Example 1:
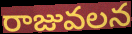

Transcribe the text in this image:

రాజువలన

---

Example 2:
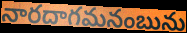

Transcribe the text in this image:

నారదాగమనంబును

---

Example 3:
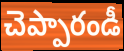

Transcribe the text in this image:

చెప్పారండీ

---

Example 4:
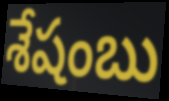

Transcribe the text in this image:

శేషంబు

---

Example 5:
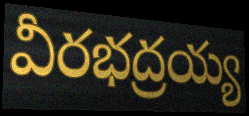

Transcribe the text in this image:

వీరభద్రయ్య